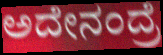
ಅದೇನಂದ್ರೆ